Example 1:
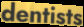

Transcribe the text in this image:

dentists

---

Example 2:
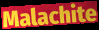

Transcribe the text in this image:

Malachite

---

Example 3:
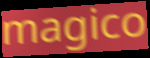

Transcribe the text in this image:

magico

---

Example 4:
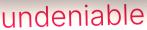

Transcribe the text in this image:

undeniable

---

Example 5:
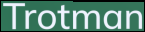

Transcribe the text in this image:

Trotman